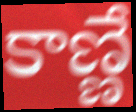
కాణ్ణే